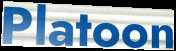
Platoon